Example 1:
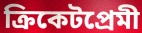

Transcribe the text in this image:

ক্রিকেটপ্রেমী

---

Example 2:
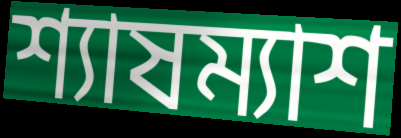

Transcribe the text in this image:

শ্যাষম্যাশ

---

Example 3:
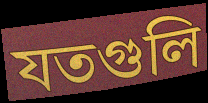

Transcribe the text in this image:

যতগুলি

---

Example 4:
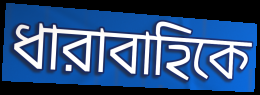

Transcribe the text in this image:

ধারাবাহিকে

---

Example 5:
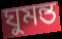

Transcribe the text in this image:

ঘুমন্ত